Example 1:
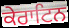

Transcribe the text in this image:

ਕੇਰਾਟਿਨ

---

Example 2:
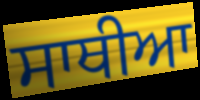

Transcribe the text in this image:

ਸਾਥੀਆ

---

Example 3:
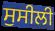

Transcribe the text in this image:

ਸੁਸੀਲੀ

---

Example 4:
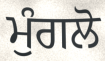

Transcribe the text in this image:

ਮੁੰਗਲੋ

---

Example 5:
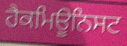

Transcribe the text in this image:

ਹੈਕਮਿਊਨਿਸਟ